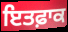
ਇਤਫ਼ਾਕ